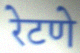
रेटणे